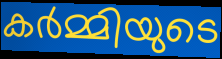
കർമ്മിയുടെ